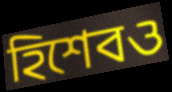
হিশেবও